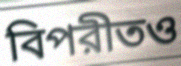
বিপরীতও